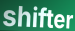
shifter